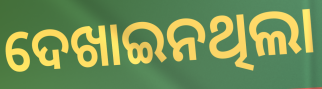
ଦେଖାଇନଥିଲା